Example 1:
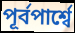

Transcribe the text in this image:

পূর্বপার্শ্বে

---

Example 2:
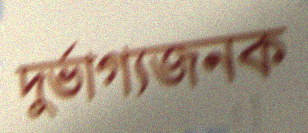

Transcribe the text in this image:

দুর্ভাগ্যজনক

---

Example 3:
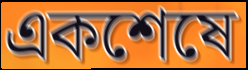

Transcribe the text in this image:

একশেষে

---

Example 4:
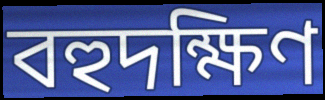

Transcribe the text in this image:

বহুদক্ষিণ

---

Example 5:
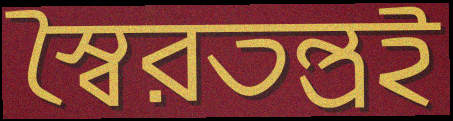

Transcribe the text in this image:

স্বৈরতন্ত্রই